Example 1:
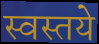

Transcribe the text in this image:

स्वस्तये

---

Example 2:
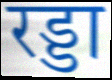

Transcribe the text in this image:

रड्डा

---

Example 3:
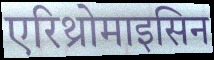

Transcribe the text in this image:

एरिथ्रोमाइसिन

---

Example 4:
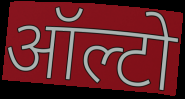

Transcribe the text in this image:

ऑल्टो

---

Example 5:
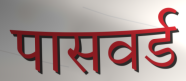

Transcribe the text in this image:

पासवर्ड